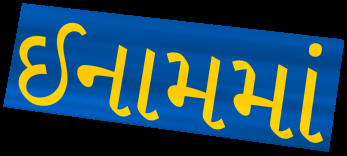
ઈનામમાં